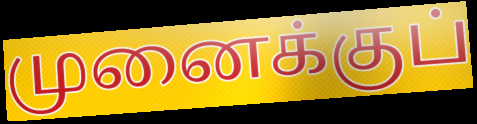
முனைக்குப்